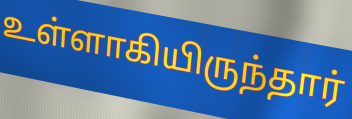
உள்ளாகியிருந்தார்